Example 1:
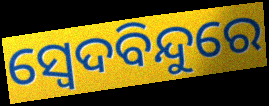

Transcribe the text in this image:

ସ୍ୱେଦବିନ୍ଦୁରେ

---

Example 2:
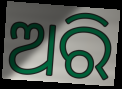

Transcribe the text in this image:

ଅରି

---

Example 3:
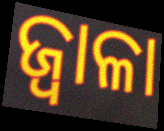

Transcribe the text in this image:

ଜ୍ୱାଳା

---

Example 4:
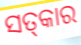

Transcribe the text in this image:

ସତ୍‌କାର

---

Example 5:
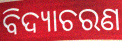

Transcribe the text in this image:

ବିଦ୍ୟାଚରଣ